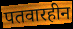
पतवारहीन